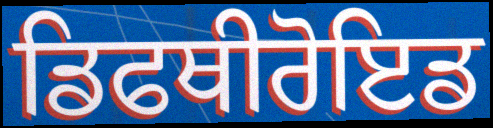
ਡਿਫਥੀਰੋਇਡ